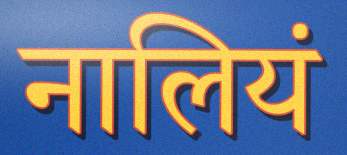
नालियं